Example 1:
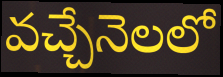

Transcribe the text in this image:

వచ్చేనెలలో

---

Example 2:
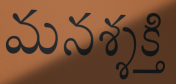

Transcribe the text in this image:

మనశ్శక్తి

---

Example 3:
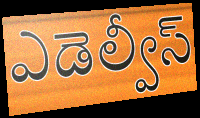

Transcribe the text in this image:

ఎడెల్వీస్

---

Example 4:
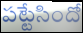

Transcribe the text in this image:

పట్టేసిందో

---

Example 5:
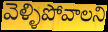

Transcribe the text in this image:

వెళ్ళిపోవాలని